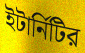
ইটার্নিটির